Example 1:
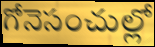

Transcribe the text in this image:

గోనెసంచుల్లో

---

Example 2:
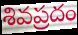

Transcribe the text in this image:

శివప్రదం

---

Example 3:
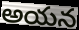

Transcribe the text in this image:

అయన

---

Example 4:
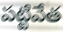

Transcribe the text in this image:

పట్టివేత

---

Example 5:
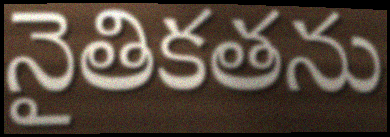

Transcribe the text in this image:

నైతికతను